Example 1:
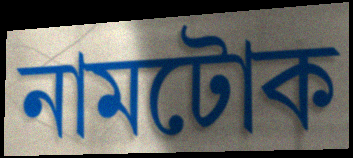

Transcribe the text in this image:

নামটোক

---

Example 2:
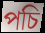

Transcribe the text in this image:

পচি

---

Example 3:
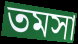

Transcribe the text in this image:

তমসা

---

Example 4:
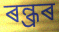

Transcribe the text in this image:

ৰন্ধ্ৰৰ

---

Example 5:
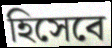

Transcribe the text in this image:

হিসেবে